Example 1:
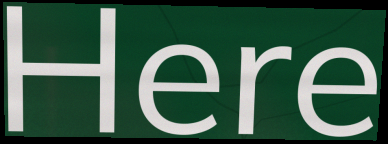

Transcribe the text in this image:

Here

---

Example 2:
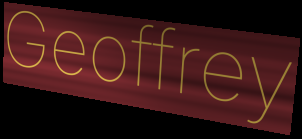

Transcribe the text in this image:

Geoffrey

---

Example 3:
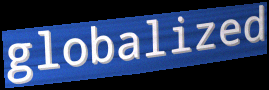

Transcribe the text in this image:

globalized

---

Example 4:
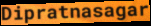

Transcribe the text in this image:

Dipratnasagar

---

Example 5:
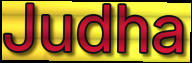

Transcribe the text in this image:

Judha